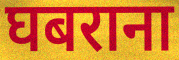
घबराना